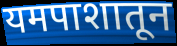
यमपाशातून